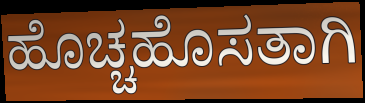
ಹೊಚ್ಚಹೊಸತಾಗಿ